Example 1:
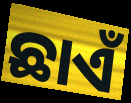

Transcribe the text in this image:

ଛାଏଁ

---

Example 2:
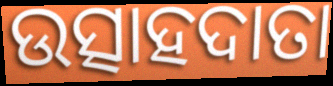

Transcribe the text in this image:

ଉତ୍ସାହଦାତା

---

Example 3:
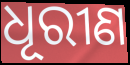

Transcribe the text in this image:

ଧୂରୀଣ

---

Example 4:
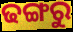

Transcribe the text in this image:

ଢଙ୍ଗରୁ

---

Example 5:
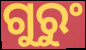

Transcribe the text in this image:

ଗୁରୁଂ